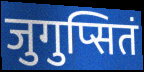
जुगुप्सितं